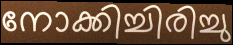
നോക്കിച്ചിരിച്ചു